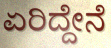
ಏರಿದ್ದೇನೆ